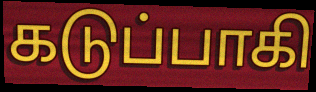
கடுப்பாகி